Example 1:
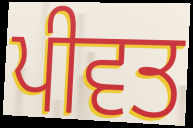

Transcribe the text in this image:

ਪੀਵਤ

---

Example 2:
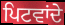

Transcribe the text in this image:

ਪਿਟਵਾਂਦੇ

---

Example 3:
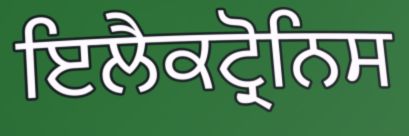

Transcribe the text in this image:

ਇਲੈਕਟ੍ਰੋਨਿਸ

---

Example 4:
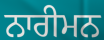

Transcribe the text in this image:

ਨਾਰੀਮਨ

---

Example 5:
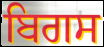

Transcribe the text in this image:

ਬਿਗਸ